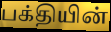
பக்தியின்